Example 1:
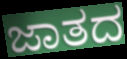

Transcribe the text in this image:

ಜಾತದ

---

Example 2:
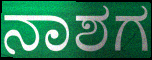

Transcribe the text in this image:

ನಾಶಗ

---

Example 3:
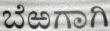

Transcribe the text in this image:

ಬೆಱಗಾಗಿ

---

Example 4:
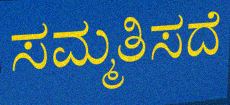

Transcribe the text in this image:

ಸಮ್ಮತಿಸದೆ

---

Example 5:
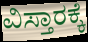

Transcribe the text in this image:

ವಿಸ್ತಾರಕ್ಕೆ